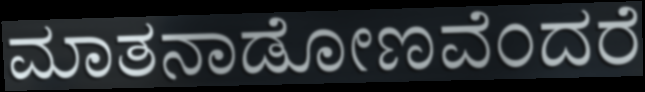
ಮಾತನಾಡೋಣವೆಂದರೆ